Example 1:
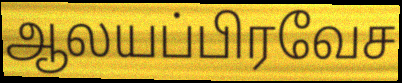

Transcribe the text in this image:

ஆலயப்பிரவேச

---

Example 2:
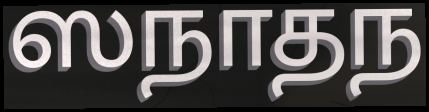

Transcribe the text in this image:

ஸநாதந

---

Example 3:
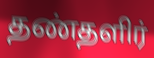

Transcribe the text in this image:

தண்தளிர்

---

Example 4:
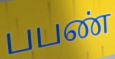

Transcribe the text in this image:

பபண்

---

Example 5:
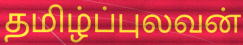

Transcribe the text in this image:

தமிழ்ப்புலவன்